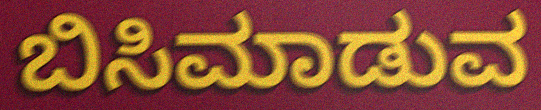
ಬಿಸಿಮಾಡುವ